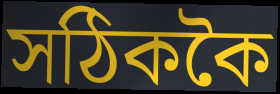
সঠিককৈ